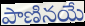
పాణినయే